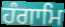
ਹੰਗਾਮਿ